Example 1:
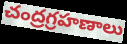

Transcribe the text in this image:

చంద్రగ్రహణాలు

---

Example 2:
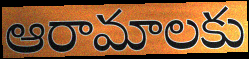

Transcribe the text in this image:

ఆరామాలకు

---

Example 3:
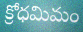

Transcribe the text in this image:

క్రోధమిమం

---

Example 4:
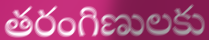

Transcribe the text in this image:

తరంగిణులకు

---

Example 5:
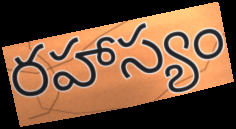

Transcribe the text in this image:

రహాస్యం